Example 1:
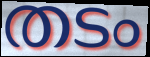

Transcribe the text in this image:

തടം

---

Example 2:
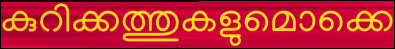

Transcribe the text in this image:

കുറിക്കത്തുകളുമൊക്കെ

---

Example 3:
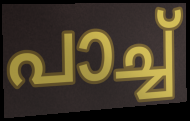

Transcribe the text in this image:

പാച്ച്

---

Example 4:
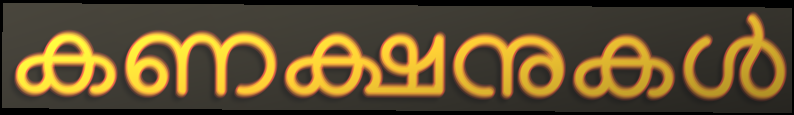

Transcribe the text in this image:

കണക്ഷനുകൾ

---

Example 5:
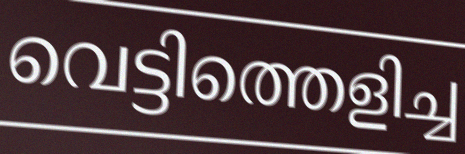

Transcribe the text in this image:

വെട്ടിത്തെളിച്ച